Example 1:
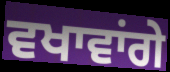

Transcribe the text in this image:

ਵਖਾਵਾਂਗੇ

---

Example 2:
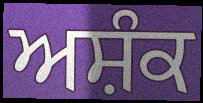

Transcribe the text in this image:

ਅਸ਼ੰਕ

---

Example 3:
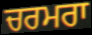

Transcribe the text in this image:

ਚਰਮਰਾ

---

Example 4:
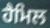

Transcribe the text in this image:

ਹੈਮਿਲ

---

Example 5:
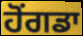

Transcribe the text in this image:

ਹੋਂਗਡਾ